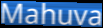
Mahuva